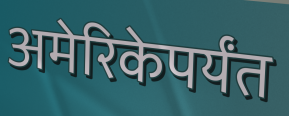
अमेरिकेपर्यंत